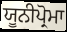
ਯੂਨੀਪ੍ਰੋਮਾ